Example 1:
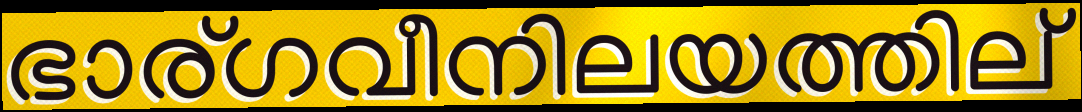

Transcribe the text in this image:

ഭാര്ഗവീനിലയത്തില്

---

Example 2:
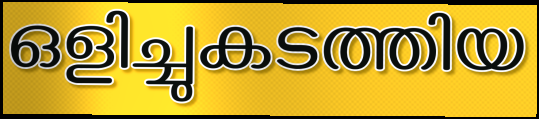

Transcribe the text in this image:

ഒളിച്ചുകടത്തിയ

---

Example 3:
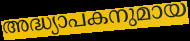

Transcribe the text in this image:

അദ്ധ്യാപകനുമായ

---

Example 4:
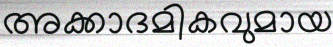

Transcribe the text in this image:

അക്കാദമികവുമായ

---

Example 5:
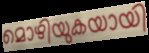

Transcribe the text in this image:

മൊഴിയുകയായി